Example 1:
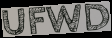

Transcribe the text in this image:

UFWD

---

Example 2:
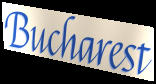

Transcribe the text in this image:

Bucharest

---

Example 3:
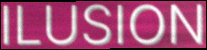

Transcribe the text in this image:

ILUSION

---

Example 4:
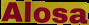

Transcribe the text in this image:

Alosa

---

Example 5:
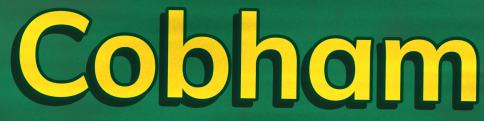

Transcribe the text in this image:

Cobham